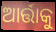
ଆର୍ତ୍ତାକୁ